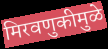
मिरवणुकीमुळे